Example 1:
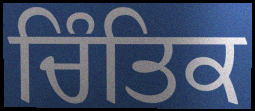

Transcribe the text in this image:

ਚਿੰਤਿਕ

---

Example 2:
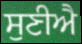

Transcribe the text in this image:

ਸੁਣੀਐ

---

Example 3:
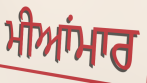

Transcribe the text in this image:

ਮੀਆਂਮਾਰ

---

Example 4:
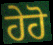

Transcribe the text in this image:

ਹੇਹੋ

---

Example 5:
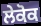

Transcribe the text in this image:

ਲੇਕੋਕ